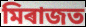
মিৰাজত